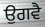
ਉਗਵੈ